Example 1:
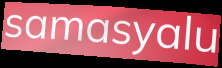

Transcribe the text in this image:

samasyalu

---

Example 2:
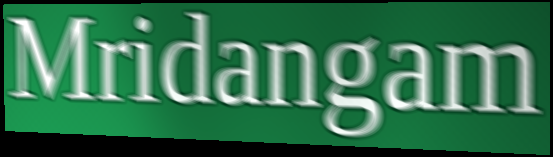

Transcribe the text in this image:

Mridangam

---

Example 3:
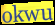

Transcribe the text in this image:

okwu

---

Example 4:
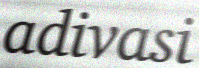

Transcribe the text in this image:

adivasi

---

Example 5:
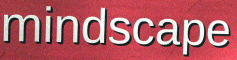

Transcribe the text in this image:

mindscape